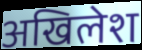
अखिलेश